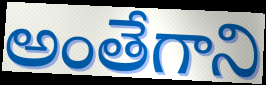
అంతేగాని